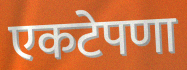
एकटेपणा